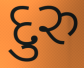
દુરુ